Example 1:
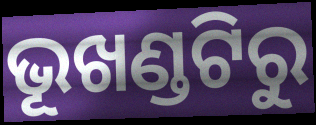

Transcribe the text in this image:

ଭୂଖଣ୍ଡଟିରୁ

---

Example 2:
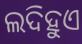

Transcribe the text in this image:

ଲଦିହୁଏ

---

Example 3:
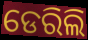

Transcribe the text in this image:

ଡେରିଲି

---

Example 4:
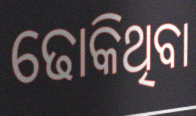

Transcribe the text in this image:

ଢୋକିଥିବା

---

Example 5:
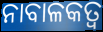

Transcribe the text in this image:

ନାବାଳକତ୍ଵ